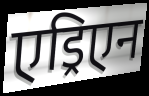
एड्रिएन